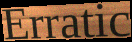
Erratic